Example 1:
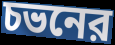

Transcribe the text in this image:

চভনের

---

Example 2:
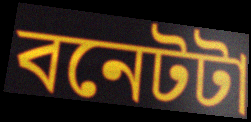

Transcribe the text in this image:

বনেটটা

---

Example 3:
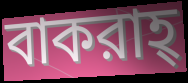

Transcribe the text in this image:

বাকরাহ্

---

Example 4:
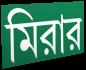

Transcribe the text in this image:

মিরার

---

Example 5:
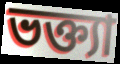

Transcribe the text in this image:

ভক্ত্যা